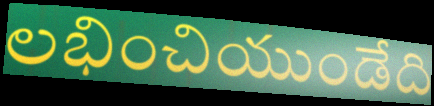
లభించియుండేది